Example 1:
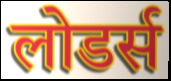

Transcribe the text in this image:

लोडर्स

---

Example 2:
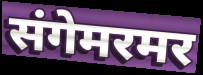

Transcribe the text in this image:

संगेमरमर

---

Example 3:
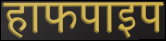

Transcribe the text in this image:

हाफपाइप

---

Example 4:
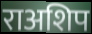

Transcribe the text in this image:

राअशिप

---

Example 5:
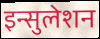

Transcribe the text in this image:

इन्सुलेशन